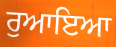
ਰੁਆਇਆ